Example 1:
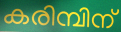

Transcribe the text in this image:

കരിമ്പിന്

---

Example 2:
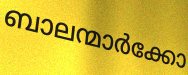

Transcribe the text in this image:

ബാലന്മാർക്കോ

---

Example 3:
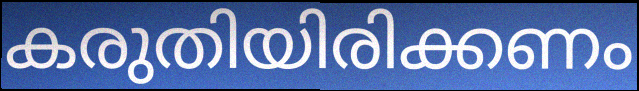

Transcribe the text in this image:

കരുതിയിരിക്കണം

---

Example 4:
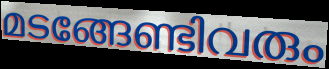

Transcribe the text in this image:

മടങ്ങേണ്ടിവരും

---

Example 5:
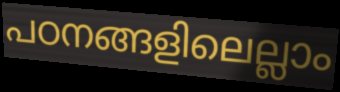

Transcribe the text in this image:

പഠനങ്ങളിലെല്ലാം